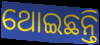
ଥୋଇଛନ୍ତି